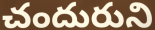
చందురుని